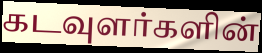
கடவுளர்களின்